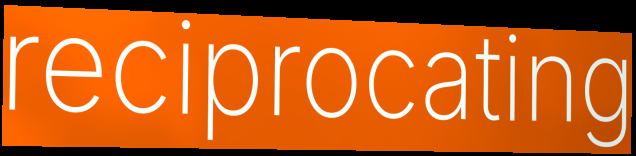
reciprocating